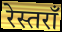
रेस्तराँ